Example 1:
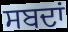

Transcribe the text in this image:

ਸਬਦਾਂ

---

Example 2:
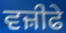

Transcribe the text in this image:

ਵਜ਼ੀਫੇ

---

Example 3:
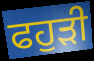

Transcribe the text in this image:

ਫਹੁੜੀ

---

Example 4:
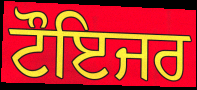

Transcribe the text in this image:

ਟੌਇਜਰ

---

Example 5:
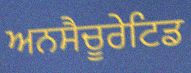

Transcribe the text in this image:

ਅਨਸੈਚੂਰੇਟਿਡ